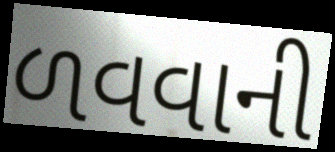
ળવવાની